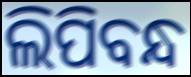
ଲିପିବନ୍ଧ